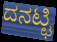
ದನಟ್ಟಿ